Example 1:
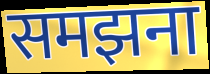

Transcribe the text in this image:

समझना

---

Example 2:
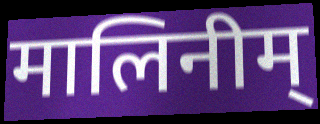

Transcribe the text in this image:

मालिनीम्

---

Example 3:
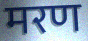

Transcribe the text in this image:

मरण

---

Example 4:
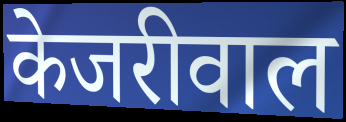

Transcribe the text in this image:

केजरीवाल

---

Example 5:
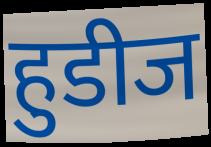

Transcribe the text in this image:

हुडीज